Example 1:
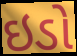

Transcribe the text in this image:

ઇડો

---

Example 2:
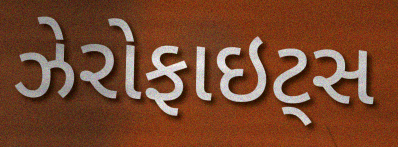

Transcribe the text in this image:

ઝેરોફાઇટ્સ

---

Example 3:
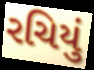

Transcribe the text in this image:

રચિયું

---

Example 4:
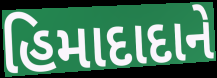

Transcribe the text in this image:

હિમાદાદાને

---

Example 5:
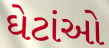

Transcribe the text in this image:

ઘેટાંઓ